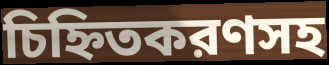
চিহ্নিতকরণসহ